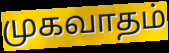
முகவாதம்